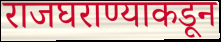
राजघराण्याकडून